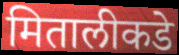
मितालीकडे